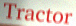
Tractor